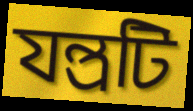
যন্ত্রটি